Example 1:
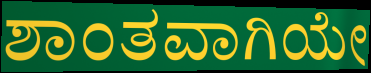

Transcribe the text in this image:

ಶಾಂತವಾಗಿಯೇ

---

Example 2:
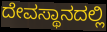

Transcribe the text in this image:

ದೇವಸ್ಥಾನದಲ್ಲಿ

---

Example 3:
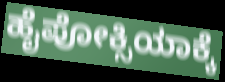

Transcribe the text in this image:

ಹೈಪೋಕ್ಸಿಯಾಕ್ಕೆ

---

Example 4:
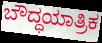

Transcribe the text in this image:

ಬೌದ್ಧಯಾತ್ರಿಕ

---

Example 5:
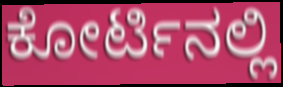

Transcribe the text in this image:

ಕೋರ್ಟಿನಲ್ಲಿ